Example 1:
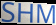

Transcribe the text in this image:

SHM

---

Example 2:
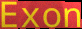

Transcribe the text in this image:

Exon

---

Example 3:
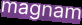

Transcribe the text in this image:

magnam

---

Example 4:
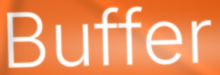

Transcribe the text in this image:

Buffer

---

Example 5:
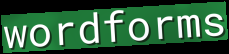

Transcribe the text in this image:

wordforms